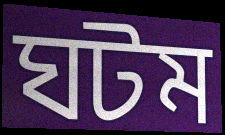
ঘটম